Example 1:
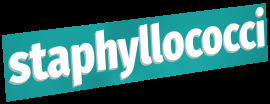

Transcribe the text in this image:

staphyllococci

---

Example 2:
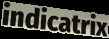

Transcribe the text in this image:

indicatrix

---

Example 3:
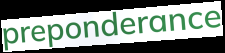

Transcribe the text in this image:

preponderance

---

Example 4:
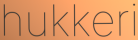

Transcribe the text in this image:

hukkeri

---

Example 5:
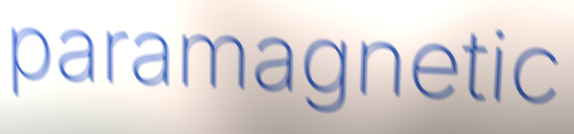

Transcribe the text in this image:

paramagnetic